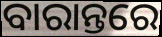
ବାରାନ୍ତରେ